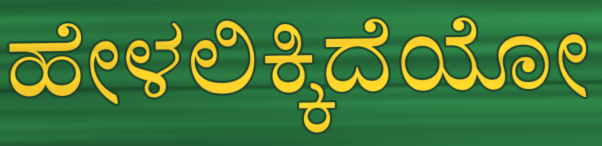
ಹೇಳಲಿಕ್ಕಿದೆಯೋ